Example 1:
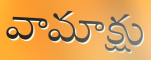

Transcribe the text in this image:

వామాక్షు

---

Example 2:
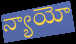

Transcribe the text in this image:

న్యాయో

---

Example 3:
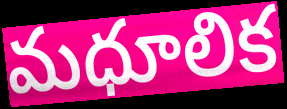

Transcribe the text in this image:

మధూలిక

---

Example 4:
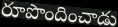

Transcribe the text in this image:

రూపొందించాడు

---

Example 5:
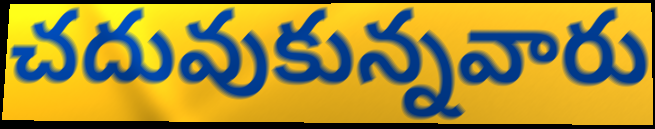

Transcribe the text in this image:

చదువుకున్నవారు